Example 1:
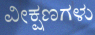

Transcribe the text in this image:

ವೀಕ್ಷಣಗಳು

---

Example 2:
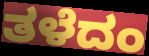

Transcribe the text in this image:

ತಳೆದಂ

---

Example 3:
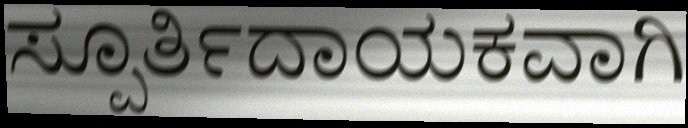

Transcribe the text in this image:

ಸ್ಪೂರ್ತಿದಾಯಕವಾಗಿ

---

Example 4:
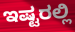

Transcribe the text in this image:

ಇಷ್ಟರಲ್ಲಿ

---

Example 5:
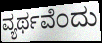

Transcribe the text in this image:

ವ್ಯರ್ಥವೆಂದು